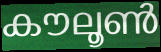
കൗലൂൺ